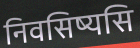
निवसिष्यसि